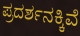
ಪ್ರದರ್ಶನಕ್ಕಿವೆ